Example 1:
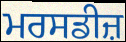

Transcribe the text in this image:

ਮਰਸਡੀਜ਼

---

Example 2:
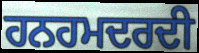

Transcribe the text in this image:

ਹਨਹਮਦਰਦੀ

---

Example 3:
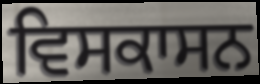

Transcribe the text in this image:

ਵਿਸਕਾਸਨ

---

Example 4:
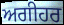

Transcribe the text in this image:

ਅਗੀਹਰ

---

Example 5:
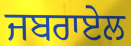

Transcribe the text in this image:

ਜਬਰਾਏਲ